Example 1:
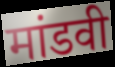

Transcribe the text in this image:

मांडवी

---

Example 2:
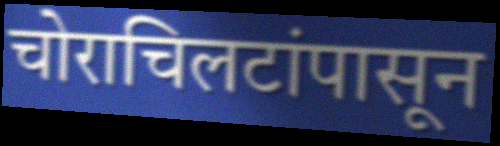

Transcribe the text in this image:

चोराचिलटांपासून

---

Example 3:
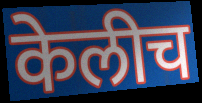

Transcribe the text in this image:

केलीच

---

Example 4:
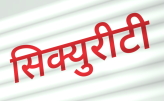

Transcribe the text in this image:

सिक्युरीटी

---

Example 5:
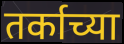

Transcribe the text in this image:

तर्काच्या